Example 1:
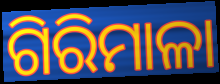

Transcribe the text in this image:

ଗିରିମାଳା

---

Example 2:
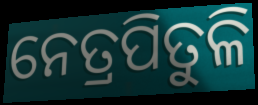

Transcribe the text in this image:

ନେତ୍ରପିତୁଳି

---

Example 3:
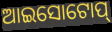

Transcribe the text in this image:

ଆଇସୋଟୋପ୍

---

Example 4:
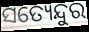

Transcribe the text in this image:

ସତ୍ୟେନ୍ଦୁର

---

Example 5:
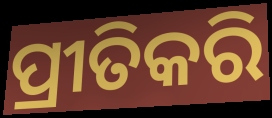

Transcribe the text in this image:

ପ୍ରୀତିକରି